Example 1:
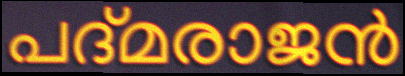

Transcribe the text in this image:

പദ്മരാജൻ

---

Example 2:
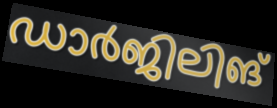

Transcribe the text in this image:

ഡാർജിലിങ്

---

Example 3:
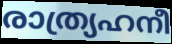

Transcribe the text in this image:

രാത്ര്യഹനീ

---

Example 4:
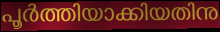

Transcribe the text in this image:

പൂർത്തിയാക്കിയതിനു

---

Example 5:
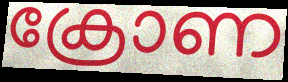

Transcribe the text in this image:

ക്രോണ